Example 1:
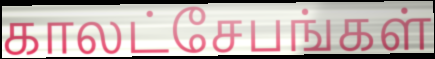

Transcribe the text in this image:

காலட்சேபங்கள்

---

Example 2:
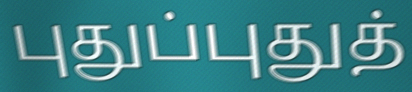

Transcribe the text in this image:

புதுப்புதுத்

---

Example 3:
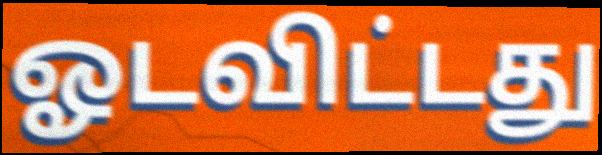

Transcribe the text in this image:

ஓடவிட்டது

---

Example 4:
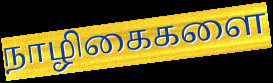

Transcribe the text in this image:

நாழிகைகளை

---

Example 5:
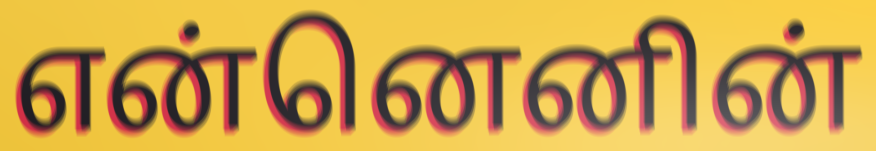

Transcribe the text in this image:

என்னெனின்